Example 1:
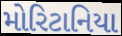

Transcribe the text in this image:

મોરિટાનિયા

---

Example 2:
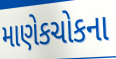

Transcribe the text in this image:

માણેકચોકના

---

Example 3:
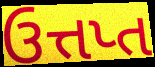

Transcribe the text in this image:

ઉત્તપ્ત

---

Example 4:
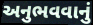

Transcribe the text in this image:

અનુભવવાનું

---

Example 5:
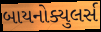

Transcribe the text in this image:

બાયનોક્યુલર્સ